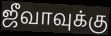
ஜீவாவுக்கு